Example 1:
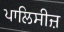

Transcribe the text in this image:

ਪਾਲਿਸੀਜ਼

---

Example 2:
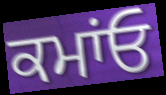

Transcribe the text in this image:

ਕਮਾਂਓ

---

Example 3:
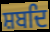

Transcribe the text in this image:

ਸ਼ਬਦਿ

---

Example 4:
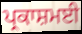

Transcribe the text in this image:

ਪ੍ਰਕਾਸ਼ਮਈ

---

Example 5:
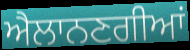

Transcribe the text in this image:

ਐਲਾਨਣਗੀਆਂ